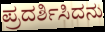
ಪ್ರದರ್ಶಿಸಿದನು